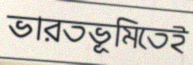
ভারতভূমিতেই